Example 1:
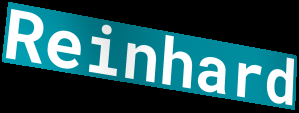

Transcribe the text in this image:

Reinhard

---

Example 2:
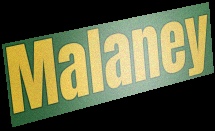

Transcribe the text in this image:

Malaney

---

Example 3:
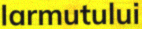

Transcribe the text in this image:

Iarmutului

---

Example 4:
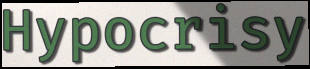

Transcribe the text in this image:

Hypocrisy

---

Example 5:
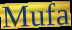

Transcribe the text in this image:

Mufa